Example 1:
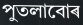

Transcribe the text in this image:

পুতলাবোৰ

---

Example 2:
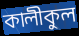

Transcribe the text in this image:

কালীকুল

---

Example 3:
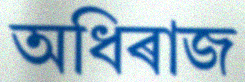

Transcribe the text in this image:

অধিৰাজ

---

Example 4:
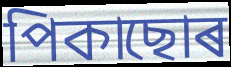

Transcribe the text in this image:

পিকাছোৰ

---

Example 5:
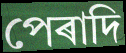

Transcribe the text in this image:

পেৰাদি